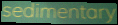
sedimentary